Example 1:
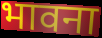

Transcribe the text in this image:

भावना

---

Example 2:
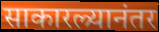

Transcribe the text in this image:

साकारल्यानंतर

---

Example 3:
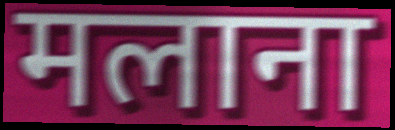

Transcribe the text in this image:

मलाना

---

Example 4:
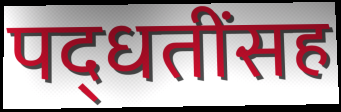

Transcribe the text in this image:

पद्धतींसह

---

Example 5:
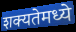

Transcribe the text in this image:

शक्यतेमध्ये